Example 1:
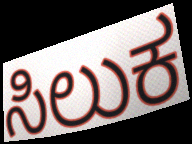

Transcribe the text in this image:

ಸಿಲುಕ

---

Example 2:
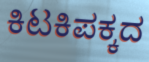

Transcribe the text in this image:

ಕಿಟಕಿಪಕ್ಕದ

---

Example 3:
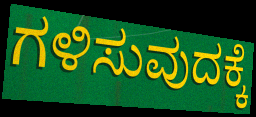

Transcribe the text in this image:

ಗಳಿಸುವುದಕ್ಕೆ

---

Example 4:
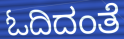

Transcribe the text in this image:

ಓದಿದಂತೆ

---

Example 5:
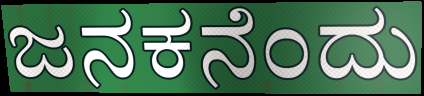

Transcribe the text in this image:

ಜನಕನೆಂದು